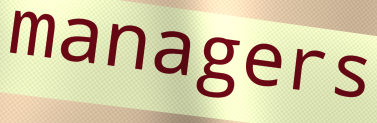
managers